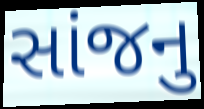
સાંજનુ